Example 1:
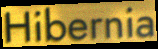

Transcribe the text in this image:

Hibernia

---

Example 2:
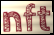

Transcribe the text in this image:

nft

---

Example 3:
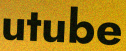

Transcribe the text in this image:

utube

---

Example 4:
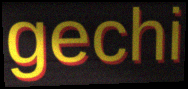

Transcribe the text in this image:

gechi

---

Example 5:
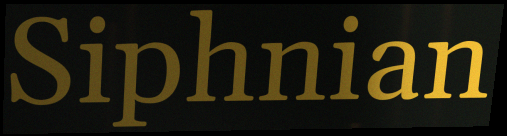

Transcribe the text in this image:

Siphnian